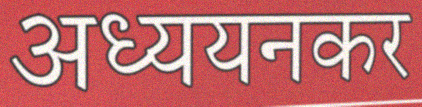
अध्ययनकर